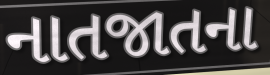
નાતજાતના